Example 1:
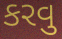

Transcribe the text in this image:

કરવુ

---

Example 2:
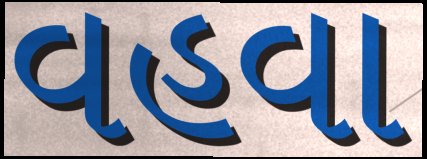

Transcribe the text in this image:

વહવા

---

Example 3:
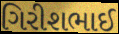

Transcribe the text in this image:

ગિરીશભાઈ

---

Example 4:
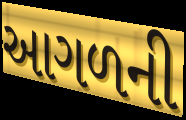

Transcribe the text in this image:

આગળની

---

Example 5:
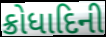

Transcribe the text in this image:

ક્રોધાદિની